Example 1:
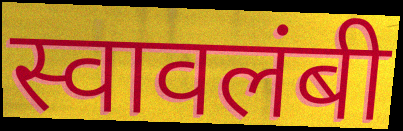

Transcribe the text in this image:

स्वावलंबी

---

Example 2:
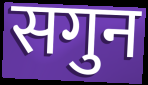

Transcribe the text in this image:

सगुन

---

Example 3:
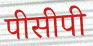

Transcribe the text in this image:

पीसीपी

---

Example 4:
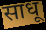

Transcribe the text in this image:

साधू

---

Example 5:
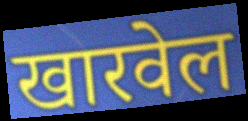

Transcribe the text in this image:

खारवेल